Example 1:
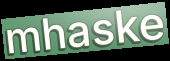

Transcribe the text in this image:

mhaske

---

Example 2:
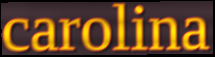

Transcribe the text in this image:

carolina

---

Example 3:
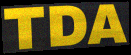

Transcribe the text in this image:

TDA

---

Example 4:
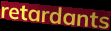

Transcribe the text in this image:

retardants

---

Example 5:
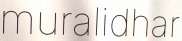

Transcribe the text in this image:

muralidhar